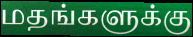
மதங்களுக்கு